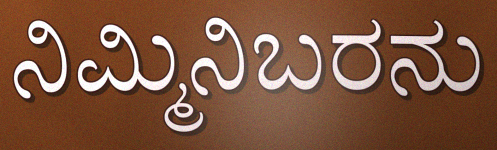
ನಿಮ್ಮಿನಿಬರನು